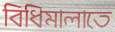
বিধিমালাতে